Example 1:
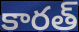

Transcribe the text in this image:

కారత్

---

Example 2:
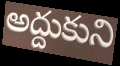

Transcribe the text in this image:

అద్దుకుని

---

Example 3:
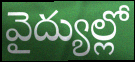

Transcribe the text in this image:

వైద్యుల్లో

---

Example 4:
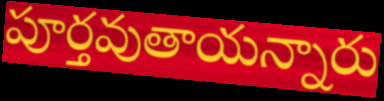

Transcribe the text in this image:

పూర్తవుతాయన్నారు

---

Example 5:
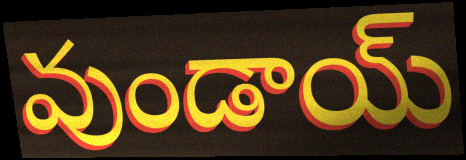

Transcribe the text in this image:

వుండాయ్